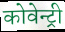
कोवेन्ट्री